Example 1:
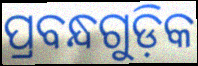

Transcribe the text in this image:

ପ୍ରବନ୍ଧଗୁଡ଼ିକ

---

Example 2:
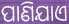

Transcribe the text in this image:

ପାଣିଯାଏ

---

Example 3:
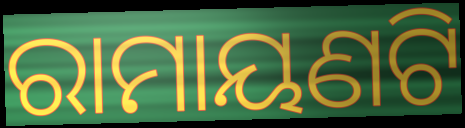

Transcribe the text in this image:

ରାମାୟଣଟି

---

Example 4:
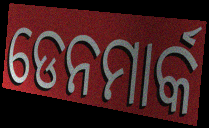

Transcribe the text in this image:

ଡେନମାର୍କ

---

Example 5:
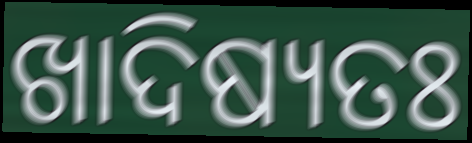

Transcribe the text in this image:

ଖାଦିଷ୍ଯତଃ